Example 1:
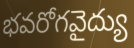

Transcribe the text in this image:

భవరోగవైద్యు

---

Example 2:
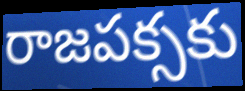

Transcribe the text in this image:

రాజపక్సకు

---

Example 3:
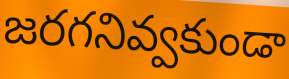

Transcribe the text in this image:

జరగనివ్వకుండా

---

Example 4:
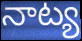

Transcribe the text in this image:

నాట్య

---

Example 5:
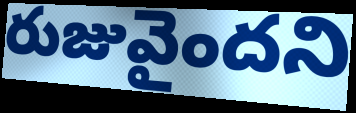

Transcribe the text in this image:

రుజువైందని